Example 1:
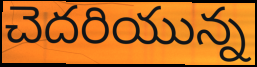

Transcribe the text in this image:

చెదరియున్న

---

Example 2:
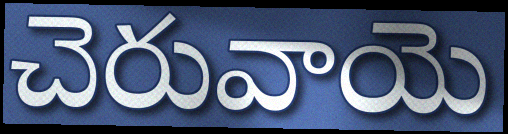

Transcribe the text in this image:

చెరువాయె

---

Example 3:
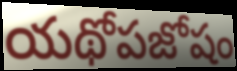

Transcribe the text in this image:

యథోపజోషం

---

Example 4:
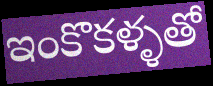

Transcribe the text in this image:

ఇంకొకళ్ళతో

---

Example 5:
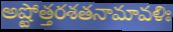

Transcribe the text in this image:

అష్టోత్తరశతనామావళిః